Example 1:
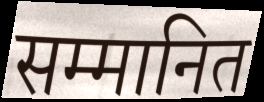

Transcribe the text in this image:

सम्मानित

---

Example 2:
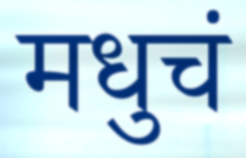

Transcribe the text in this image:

मधुचं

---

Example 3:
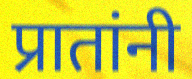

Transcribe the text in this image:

प्रातांनी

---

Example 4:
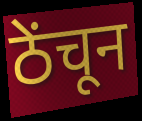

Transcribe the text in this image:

ठेंचून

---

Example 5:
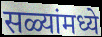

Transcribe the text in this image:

सळ्यांमध्ये